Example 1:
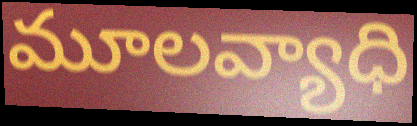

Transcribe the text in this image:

మూలవ్యాధి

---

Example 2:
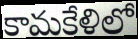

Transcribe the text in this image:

కామకేళిలో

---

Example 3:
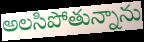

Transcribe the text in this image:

అలసిపోతున్నాను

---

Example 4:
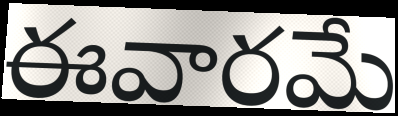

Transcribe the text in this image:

ఈవారమే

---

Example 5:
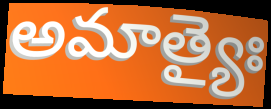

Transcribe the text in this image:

అమాత్యైః